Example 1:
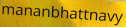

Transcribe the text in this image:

mananbhattnavy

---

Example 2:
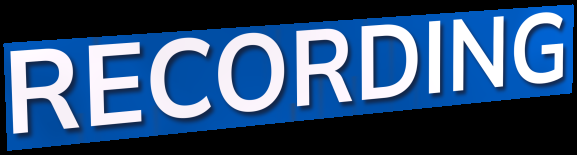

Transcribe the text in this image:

RECORDING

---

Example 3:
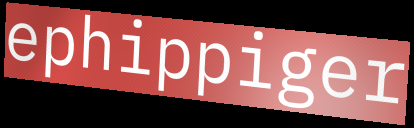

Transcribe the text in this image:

ephippiger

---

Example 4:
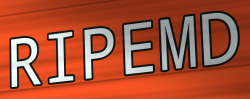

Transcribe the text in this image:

RIPEMD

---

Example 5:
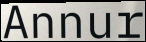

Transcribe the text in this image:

Annur